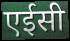
एईसी